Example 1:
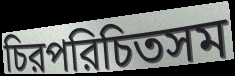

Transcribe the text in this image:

চিরপরিচিতসম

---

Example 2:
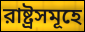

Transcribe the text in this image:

রাষ্ট্রসমূহে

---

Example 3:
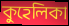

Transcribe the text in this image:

কুহেলিকা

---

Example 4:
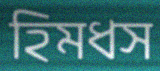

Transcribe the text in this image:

হিমধস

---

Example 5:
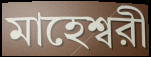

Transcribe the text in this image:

মাহেশ্বরী